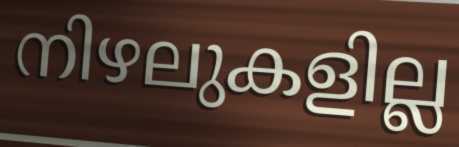
നിഴലുകളില്ല